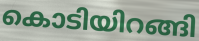
കൊടിയിറങ്ങി